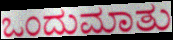
ಒಂದುಮಾತು